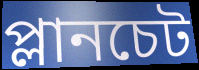
প্লানচেট